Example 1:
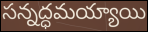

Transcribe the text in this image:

సన్నద్ధమయ్యాయి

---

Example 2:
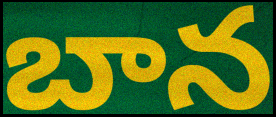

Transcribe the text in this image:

బాన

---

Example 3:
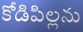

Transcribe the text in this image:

కోడిపిల్లను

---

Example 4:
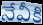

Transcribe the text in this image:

నేవీకి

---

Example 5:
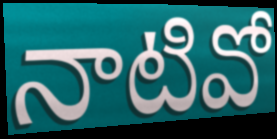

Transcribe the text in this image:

నాటివో